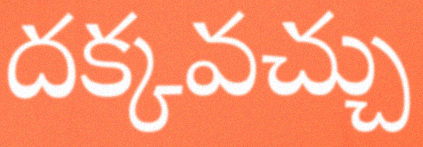
దక్కవచ్చు